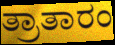
ತ್ರಾತಾರಂ